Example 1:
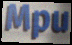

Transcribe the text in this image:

Mpu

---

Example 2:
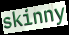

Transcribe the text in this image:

skinny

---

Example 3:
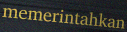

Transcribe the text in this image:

memerintahkan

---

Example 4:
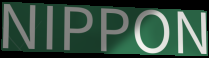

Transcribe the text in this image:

NIPPON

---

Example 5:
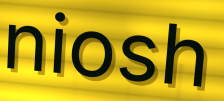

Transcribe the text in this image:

niosh